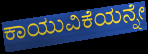
ಕಾಯುವಿಕೆಯನ್ನೇ